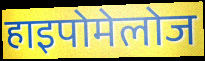
हाइपोमेलोज